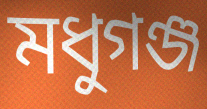
মধুগঞ্জ